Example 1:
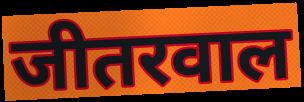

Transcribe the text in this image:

जीतरवाल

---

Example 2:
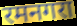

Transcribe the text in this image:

रमनगरा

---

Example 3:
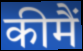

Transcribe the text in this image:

कीमैं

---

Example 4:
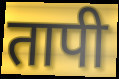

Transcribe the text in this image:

तापी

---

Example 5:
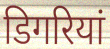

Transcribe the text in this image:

डिगरियां